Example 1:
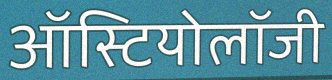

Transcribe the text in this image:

ऑस्टियोलॉजी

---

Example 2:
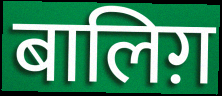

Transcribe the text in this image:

बालिग़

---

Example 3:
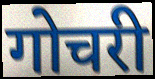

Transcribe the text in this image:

गोचरी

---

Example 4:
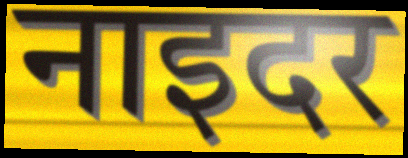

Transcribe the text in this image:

नाइदर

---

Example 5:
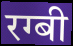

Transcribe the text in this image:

रग्‍बी